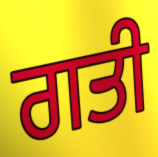
ਗਤੀ